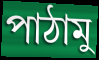
পাঠামু